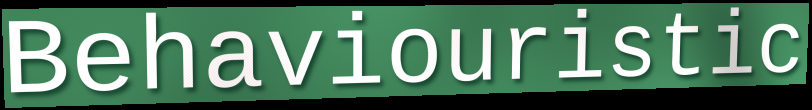
Behaviouristic